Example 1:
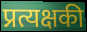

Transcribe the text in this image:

प्रत्यक्षकी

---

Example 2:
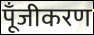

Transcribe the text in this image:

पूँजीकरण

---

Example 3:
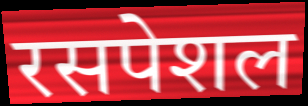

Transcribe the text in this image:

रसपेशल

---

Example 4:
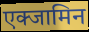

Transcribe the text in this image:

एक्जामिन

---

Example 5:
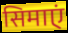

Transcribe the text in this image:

सिमाएं